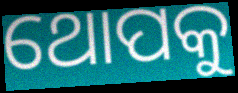
ଥୋପକୁ